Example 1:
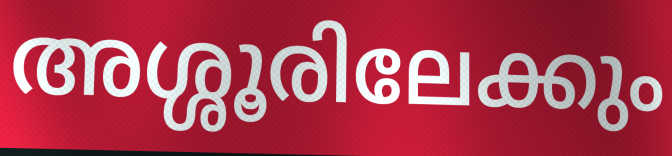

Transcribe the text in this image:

അശ്ശൂരിലേക്കും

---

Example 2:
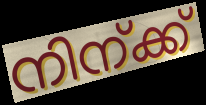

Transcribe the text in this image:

നിന്ക്ക്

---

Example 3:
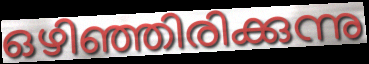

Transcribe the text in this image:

ഒഴിഞ്ഞിരിക്കുന്നു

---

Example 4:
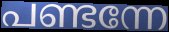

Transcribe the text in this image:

പണ്ടന്നേ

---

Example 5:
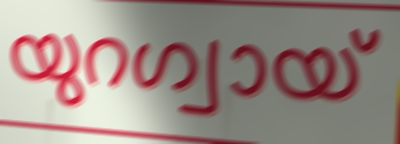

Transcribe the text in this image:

യുറഗ്വായ്